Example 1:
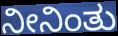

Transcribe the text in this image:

ನೀನಿಂತು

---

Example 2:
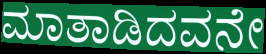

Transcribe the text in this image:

ಮಾತಾಡಿದವನೇ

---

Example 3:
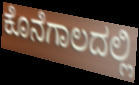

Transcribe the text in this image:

ಕೊನೆಗಾಲದಲ್ಲಿ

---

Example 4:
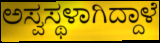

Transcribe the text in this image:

ಅಸ್ವಸ್ಥಳಾಗಿದ್ದಾಳೆ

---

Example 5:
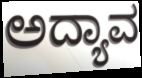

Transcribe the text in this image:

ಅದ್ಯಾವ